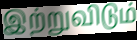
இற்றுவிடும்